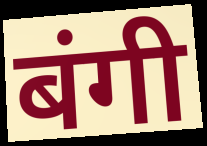
बंगी